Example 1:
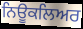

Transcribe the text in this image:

ਨਿਊਕਲਿਅਰ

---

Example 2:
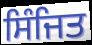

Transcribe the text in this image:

ਸਿੰਜਿਤ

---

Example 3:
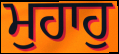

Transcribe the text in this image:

ਮੁਹਾਹੁ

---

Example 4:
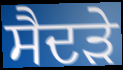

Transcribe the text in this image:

ਸੈਦੜੇ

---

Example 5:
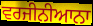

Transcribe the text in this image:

ਵਰਜੀਨੀਆਨਾ